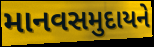
માનવસમુદાયને